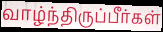
வாழ்ந்திருப்பீர்கள்